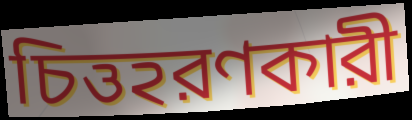
চিত্তহরণকারী